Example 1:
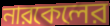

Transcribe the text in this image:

নারকেলের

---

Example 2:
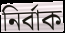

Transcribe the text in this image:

নির্বাক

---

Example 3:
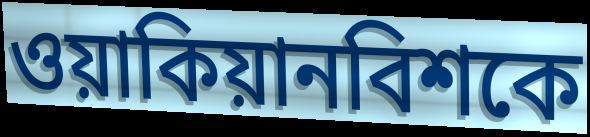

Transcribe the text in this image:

ওয়াকিয়ানবিশকে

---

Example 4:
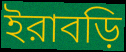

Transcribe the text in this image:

ইরাবড়ি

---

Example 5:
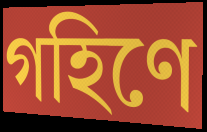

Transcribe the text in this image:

গহিণে